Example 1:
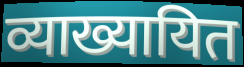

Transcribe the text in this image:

व्याख्यायित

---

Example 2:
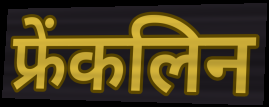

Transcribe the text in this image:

फ्रेंकलिन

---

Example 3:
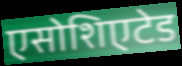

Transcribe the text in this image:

एसोशिएटेड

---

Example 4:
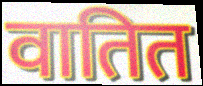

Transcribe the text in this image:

वातित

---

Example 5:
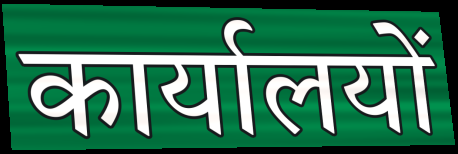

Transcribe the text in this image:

कार्यालयों